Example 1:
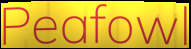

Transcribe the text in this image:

Peafowl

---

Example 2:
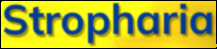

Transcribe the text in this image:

Stropharia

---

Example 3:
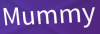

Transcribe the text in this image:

Mummy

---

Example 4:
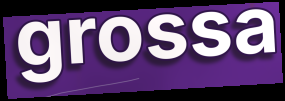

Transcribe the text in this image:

grossa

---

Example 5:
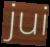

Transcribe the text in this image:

jui